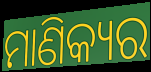
ମାଣିକ୍ୟର